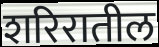
शरिरातील